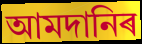
আমদানিৰ